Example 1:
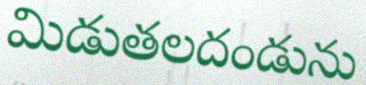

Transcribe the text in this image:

మిడుతలదండును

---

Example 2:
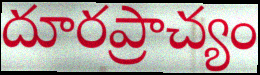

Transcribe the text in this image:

దూరప్రాచ్యం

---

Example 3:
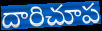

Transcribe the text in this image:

దారిచూప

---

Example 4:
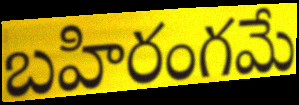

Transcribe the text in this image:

బహిరంగమే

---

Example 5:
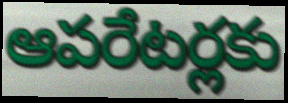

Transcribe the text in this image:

ఆపరేటర్లకు